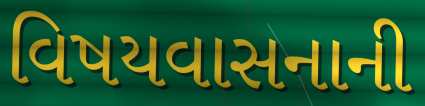
વિષયવાસનાની